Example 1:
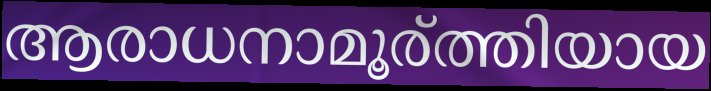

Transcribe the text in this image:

ആരാധനാമൂര്ത്തിയായ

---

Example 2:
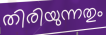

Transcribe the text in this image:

തിരിയുന്നതും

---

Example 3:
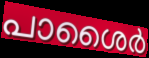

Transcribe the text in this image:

പാശൈർ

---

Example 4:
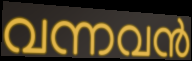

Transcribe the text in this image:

വന്നവൻ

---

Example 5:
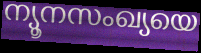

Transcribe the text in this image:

ന്യൂനസംഖ്യയെ